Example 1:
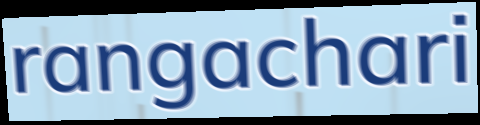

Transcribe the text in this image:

rangachari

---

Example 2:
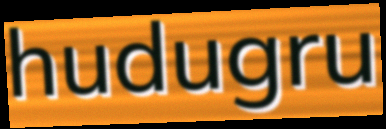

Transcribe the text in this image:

hudugru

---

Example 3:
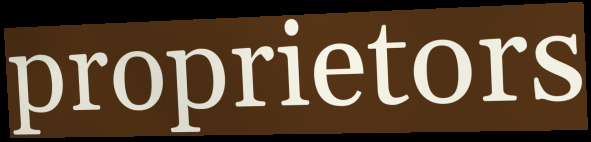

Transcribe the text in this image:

proprietors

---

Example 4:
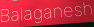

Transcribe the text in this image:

Balaganesh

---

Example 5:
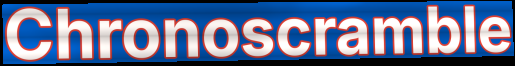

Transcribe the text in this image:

Chronoscramble